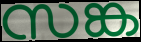
സങ്ക